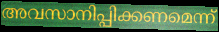
അവസാനിപ്പിക്കണമെന്ന്